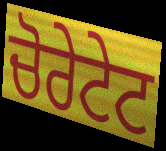
ਚੋਰੇਟੇਟ